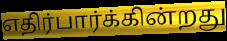
எதிர்பார்க்கின்றது